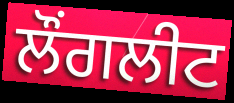
ਲੌਂਗਲੀਟ